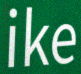
ike